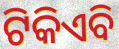
ଟିକିଏବି